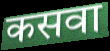
कसवा